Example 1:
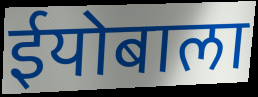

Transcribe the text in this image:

ईयोबाला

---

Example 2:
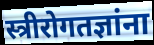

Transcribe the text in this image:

स्त्रीरोगतज्ञांना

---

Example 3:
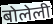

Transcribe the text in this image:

बोलेली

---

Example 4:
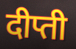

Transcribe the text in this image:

दीप्ती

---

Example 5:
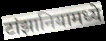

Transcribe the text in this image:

टांझानियामध्ये